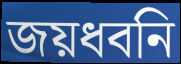
জয়ধবনি